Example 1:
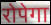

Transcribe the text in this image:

रोपेगा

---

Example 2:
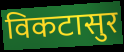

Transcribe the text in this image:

विकटासुर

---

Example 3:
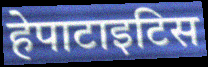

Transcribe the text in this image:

हेपाटाइटिस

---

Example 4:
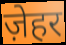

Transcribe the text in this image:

ज़ेहर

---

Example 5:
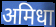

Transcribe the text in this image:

अमिधा